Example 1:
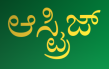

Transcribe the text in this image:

ಆಸ್ಟ್ರಿಜ್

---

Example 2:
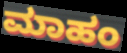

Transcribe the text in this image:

ಮಾಹಂ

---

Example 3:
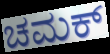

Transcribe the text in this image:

ಚಮಕ್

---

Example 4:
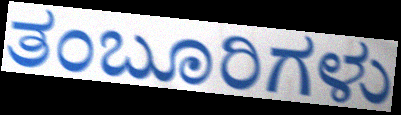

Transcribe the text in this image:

ತಂಬೂರಿಗಳು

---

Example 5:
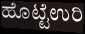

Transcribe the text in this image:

ಹೊಟ್ಟೆಉರಿ